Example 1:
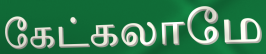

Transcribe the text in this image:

கேட்கலாமே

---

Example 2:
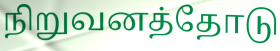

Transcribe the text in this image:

நிறுவனத்தோடு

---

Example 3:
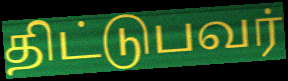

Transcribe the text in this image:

திட்டுபவர்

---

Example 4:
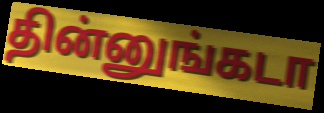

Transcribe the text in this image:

தின்னுங்கடா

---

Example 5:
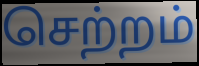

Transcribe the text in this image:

செற்றம்